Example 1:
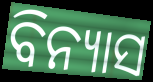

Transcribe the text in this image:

ବିନ୍ୟାସ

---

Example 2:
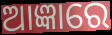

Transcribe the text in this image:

ଆଜ୍ଞାରେ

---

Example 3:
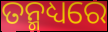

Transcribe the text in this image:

ତନ୍ମଧ୍ୟରେ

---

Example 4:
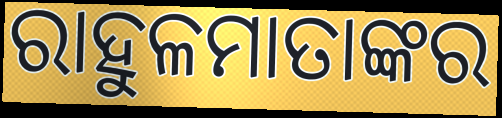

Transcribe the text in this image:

ରାହୁଳମାତାଙ୍କର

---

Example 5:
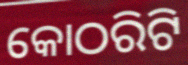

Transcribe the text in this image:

କୋଠରିଟି